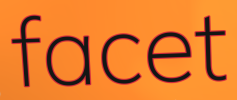
facet